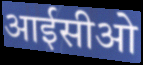
आईसीओ